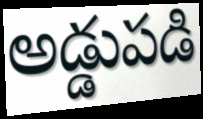
అడ్డుపడి